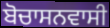
ਬੋਚਾਸਨਵਾਸੀ